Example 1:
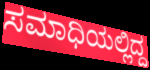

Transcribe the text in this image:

ಸಮಾಧಿಯಲ್ಲಿದ್ದ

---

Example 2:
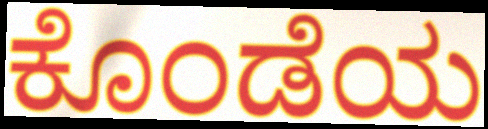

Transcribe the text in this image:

ಕೊಂಡೆಯ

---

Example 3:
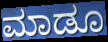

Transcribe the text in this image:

ಮಾಡೂ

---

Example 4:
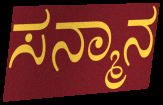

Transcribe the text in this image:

ಸನ್ಮಾನ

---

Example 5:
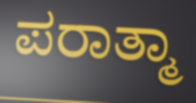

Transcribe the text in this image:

ಪರಾತ್ಮಾ